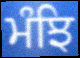
ਮੰਝਿ